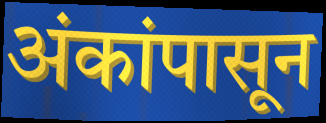
अंकांपासून